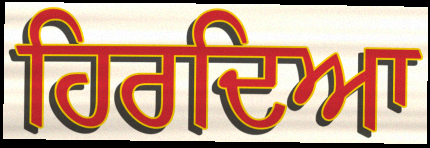
ਹਿਰਦਿਆ